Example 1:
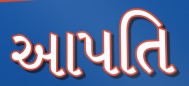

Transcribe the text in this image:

આપતિ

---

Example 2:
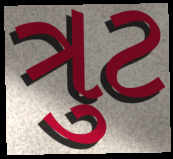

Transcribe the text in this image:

ત્રુટ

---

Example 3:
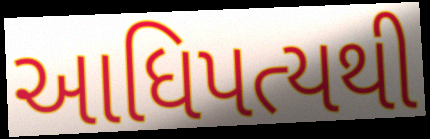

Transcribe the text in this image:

આધિપત્યથી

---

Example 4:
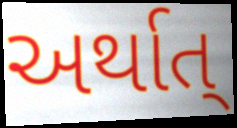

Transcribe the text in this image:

અર્થાત્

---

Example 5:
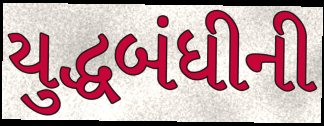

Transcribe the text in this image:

યુદ્ધબંધીની